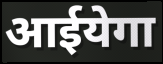
आईयेगा